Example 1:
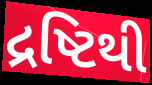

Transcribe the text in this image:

દ્રષ્ટિથી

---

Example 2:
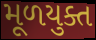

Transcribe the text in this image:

મૂળયુક્ત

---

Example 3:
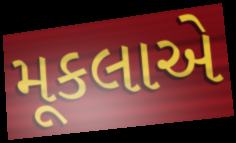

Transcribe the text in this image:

મૂકલાએ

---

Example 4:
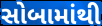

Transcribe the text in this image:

સોબામાંથી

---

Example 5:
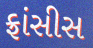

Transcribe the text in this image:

ફ્રાંસીસ